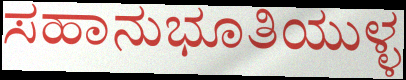
ಸಹಾನುಭೂತಿಯುಳ್ಳ